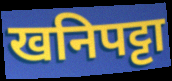
खनिपट्टा